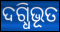
ଦଗ୍ଧିଭୂତ